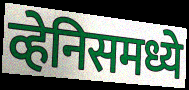
व्हेनिसमध्ये